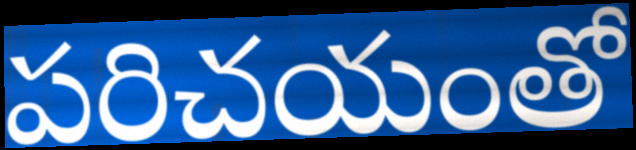
పరిచయంతో